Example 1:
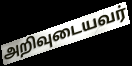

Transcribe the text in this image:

அறிவுடையவர்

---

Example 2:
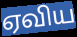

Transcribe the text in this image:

ஏவிய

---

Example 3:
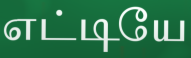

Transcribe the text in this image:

எட்டியே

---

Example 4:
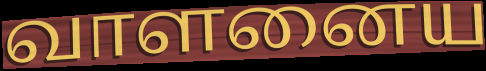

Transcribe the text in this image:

வாளனைய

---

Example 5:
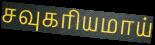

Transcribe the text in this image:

சவுகரியமாய்